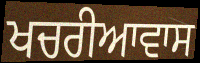
ਖਚਰੀਆਵਾਸ